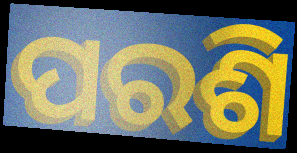
ପରଶି